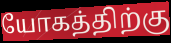
யோகத்திற்கு